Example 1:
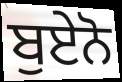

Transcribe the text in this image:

ਬੁਏਨੋ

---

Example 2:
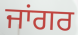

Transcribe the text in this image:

ਜਾਂਗਰ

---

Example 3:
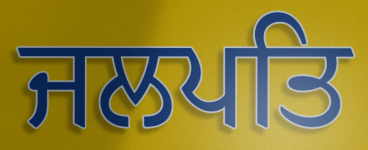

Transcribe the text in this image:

ਜਲਪਤਿ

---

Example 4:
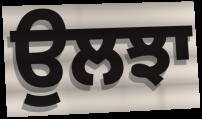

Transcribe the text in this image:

ਉਲਝਾ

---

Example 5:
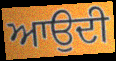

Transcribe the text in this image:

ਆਉਦੀ